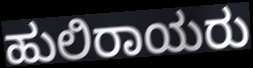
ಹುಲಿರಾಯರು